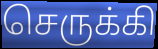
செருக்கி